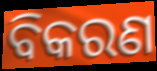
ବିକରଣ